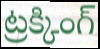
ట్రక్కింగ్